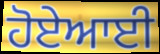
ਹੋਏਆਈ